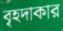
বৃহদাকার